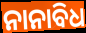
ନାନାବିଧ